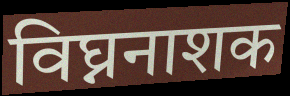
विघ्ननाशक